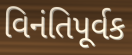
વિનંતિપૂર્વક